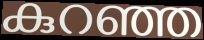
കുറഞ്ഞ